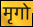
मृगो